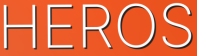
HEROS